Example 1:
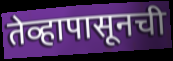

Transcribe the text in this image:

तेव्हापासूनची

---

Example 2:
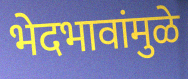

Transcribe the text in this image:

भेदभावांमुळे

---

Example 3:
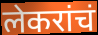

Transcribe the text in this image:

लेकरांचं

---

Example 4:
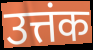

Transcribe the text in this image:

उत्तंक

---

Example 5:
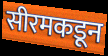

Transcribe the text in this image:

सीरमकडून